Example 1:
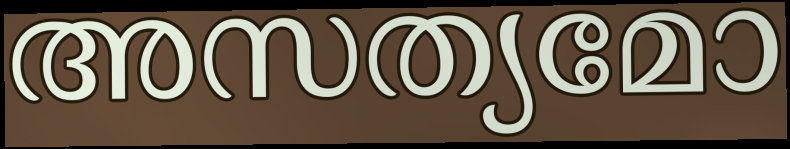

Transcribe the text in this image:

അസത്യമോ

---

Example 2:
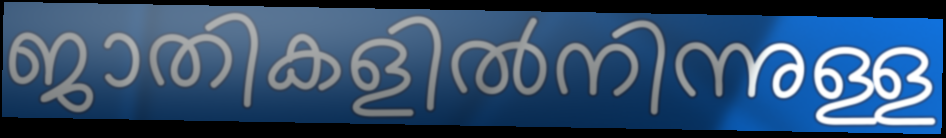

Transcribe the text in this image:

ജാതികളിൽനിന്നുള്ള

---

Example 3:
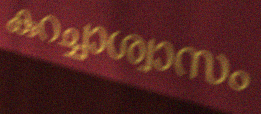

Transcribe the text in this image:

കുറച്ചാശ്വാസം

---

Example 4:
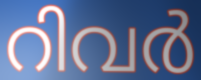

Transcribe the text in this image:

റിവർ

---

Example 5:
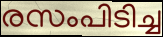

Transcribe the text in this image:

രസംപിടിച്ച